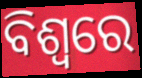
ବିଶ୍ଵରେ